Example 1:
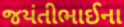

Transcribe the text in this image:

જયંતીભાઈના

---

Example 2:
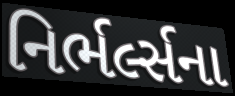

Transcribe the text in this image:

નિર્ભર્લ્સના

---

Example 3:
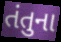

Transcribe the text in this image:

તંતુના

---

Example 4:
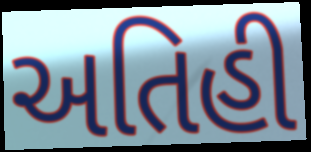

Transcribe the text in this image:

અતિહી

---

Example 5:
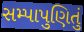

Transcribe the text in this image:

સમ્પાપુણિતું